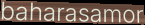
baharasamor